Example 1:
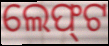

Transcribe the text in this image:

ଲେଫ୍‌ଟ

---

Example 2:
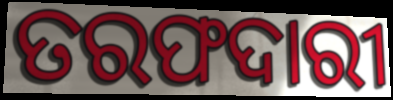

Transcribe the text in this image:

ତରଫଦାରୀ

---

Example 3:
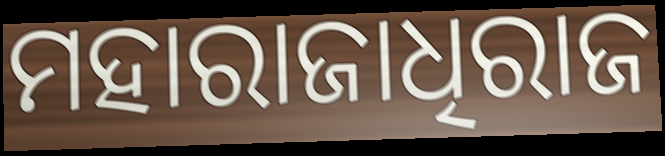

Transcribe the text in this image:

ମହାରାଜାଧିରାଜ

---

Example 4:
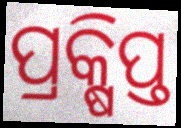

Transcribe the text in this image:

ପ୍ରକ୍ଷିପ୍ତ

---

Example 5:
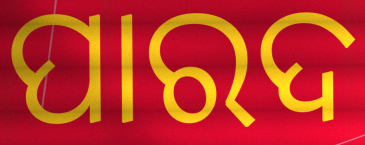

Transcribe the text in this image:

ପାରଦ